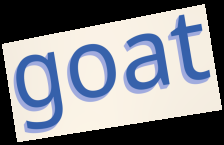
goat